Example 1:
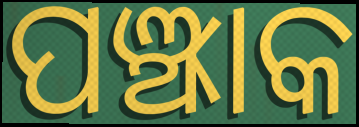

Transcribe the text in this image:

ପଞ୍ଝାକ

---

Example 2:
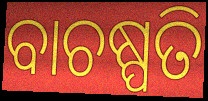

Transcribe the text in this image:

ବାଚଷ୍ପତି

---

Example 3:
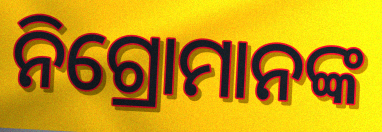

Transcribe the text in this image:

ନିଗ୍ରୋମାନଙ୍କ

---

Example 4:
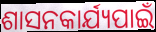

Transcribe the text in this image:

ଶାସନକାର୍ଯ୍ୟପାଇଁ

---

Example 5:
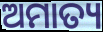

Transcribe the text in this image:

ଅମାତ୍ୟ